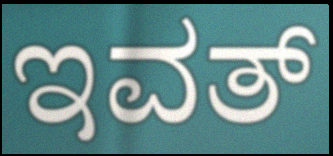
ಇವತ್